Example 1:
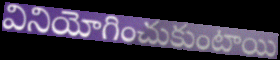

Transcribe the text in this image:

వినియోగించుకుంటాయి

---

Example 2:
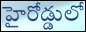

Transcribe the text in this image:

హైరోడ్డులో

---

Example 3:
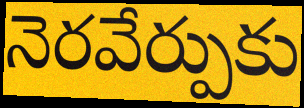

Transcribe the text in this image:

నెరవేర్పుకు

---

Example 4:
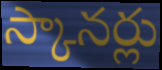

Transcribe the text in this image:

స్కానర్లు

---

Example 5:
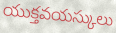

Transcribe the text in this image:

యుక్తవయస్కులు